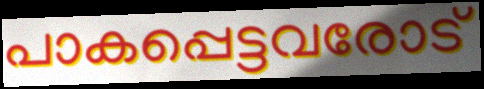
പാകപ്പെട്ടവരോട്